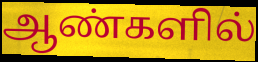
ஆண்களில்